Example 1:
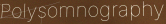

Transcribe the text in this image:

Polysomnography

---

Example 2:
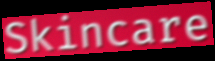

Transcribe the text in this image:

Skincare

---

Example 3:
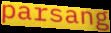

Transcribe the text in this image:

parsang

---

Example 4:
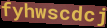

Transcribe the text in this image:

fyhwscdcj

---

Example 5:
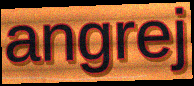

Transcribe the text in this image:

angrej